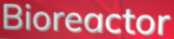
Bioreactor